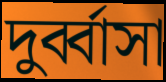
দুর্ব্বাসা